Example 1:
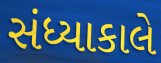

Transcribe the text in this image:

સંધ્યાકાલે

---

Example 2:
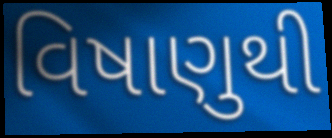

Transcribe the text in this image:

વિષાણુથી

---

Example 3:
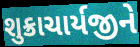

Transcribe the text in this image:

શુક્રાચાર્યજીને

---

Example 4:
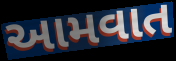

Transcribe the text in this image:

આમવાત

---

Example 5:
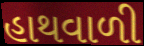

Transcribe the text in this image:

હાથવાળી